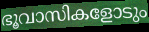
ഭൂവാസികളോടും